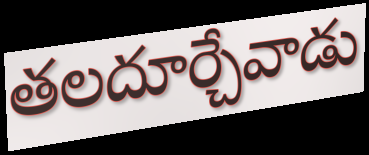
తలదూర్చేవాడు